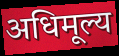
अधिमूल्य